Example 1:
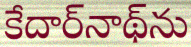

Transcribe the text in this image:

కేదార్‌నాథ్‌ను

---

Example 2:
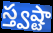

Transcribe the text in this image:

స్త్వష్టా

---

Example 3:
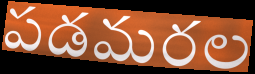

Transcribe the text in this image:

పడమరల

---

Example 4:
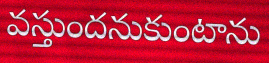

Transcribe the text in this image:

వస్తుందనుకుంటాను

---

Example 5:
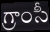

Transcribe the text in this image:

గ్రాంసీ